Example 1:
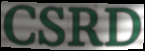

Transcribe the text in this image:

CSRD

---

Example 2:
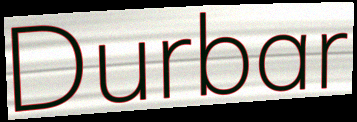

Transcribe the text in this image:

Durbar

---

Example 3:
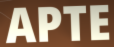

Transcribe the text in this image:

APTE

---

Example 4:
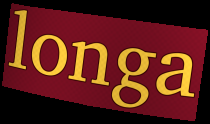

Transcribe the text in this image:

longa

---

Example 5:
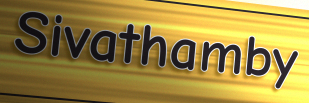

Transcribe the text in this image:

Sivathamby